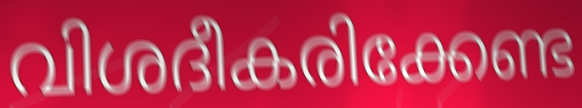
വിശദീകരിക്കേണ്ട